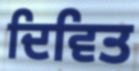
ਦਿਵਿਤ